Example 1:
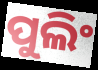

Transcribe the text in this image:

ପୁଲିଂ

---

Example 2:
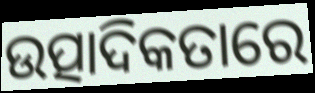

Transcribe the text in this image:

ଉତ୍ପାଦିକତାରେ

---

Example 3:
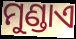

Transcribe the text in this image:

ମୁଣ୍ଡାଏ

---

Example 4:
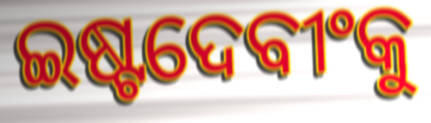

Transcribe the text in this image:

ଇଷ୍ଟଦେବୀଂକୁ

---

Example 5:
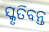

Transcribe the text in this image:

ସ୍କୃତିବନ୍ତ